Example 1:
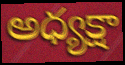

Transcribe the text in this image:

అధ్యక్షా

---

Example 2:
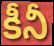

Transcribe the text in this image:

కీనీ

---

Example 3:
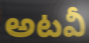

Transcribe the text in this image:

అటవీ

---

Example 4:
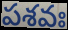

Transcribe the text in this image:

పశవః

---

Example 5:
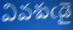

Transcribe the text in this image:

వివశుఁడై